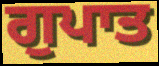
ਗੁਪਾਤ